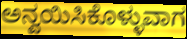
ಅನ್ವಯಿಸಿಕೊಳ್ಳುವಾಗ